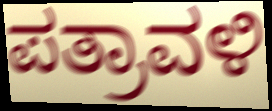
ಪತ್ರಾವಳಿ